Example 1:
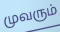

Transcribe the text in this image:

முவரும்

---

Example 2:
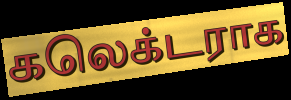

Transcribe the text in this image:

கலெக்டராக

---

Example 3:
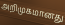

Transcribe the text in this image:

அறிமுகமானது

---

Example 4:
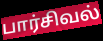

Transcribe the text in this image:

பார்சிவல்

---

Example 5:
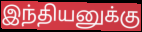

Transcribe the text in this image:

இந்தியனுக்கு